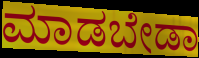
ಮಾಡಬೇಡಾ